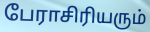
பேராசிரியரும்